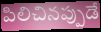
పిలిచినప్పుడే